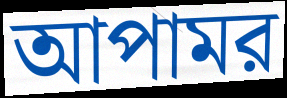
আপামর